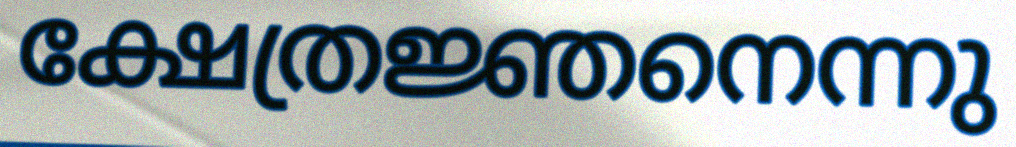
ക്ഷേത്രജ്ഞനെന്നു